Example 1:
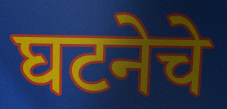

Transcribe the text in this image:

घटनेचे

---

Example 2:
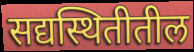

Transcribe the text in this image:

सद्यस्थितीतील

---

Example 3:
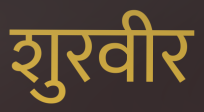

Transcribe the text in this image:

शुरवीर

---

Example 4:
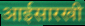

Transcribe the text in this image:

आईसारखी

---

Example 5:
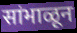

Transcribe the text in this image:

सांभाळून